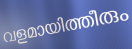
വളമായിത്തീരും